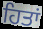
ਹਿਤਾਂ